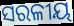
ସରଳୀୟ